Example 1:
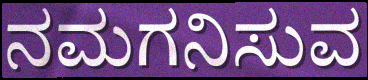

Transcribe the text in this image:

ನಮಗನಿಸುವ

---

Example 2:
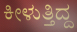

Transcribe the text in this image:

ಕೀಳುತ್ತಿದ್ದ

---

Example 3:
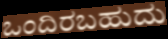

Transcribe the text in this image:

ಒಂದಿರಬಹುದು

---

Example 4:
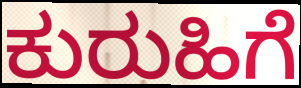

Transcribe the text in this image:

ಕುರುಹಿಗೆ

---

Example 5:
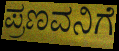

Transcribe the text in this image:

ಪ್ರಣವನಿಗೆ